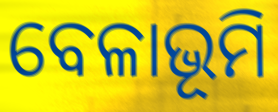
ବେଳାଭୂମି